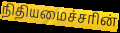
நிதியமைச்சரின்